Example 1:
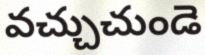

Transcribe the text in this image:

వచ్చుచుండె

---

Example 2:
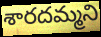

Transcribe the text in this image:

శారదమ్మని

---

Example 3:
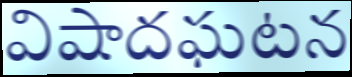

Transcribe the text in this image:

విషాదఘటన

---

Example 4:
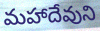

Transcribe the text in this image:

మహాదేవుని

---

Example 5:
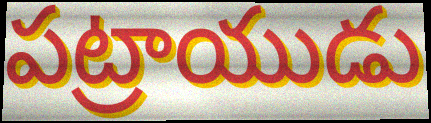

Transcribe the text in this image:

పట్రాయుడు